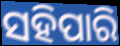
ସହିପାରି